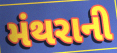
મંથરાની